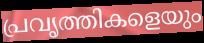
പ്രവൃത്തികളെയും